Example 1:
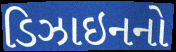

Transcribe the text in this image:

ડિઝાઇનનો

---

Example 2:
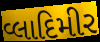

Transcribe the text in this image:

વ્લાદિમીર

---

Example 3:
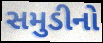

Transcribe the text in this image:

સમુડીનો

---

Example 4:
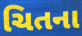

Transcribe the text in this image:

ચિતના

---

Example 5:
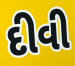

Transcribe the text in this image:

દીવી